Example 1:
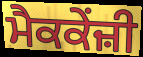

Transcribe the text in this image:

ਮੈਕਕੇਂਜ਼ੀ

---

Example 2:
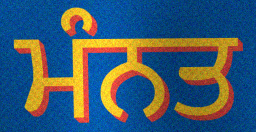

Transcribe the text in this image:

ਮੰਨਤ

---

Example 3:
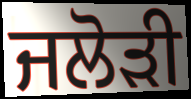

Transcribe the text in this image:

ਜਲੋੜੀ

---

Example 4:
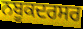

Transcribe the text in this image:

ਨਬੂਕਦਰਸਰ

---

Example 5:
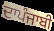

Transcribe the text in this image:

ਦਾਪੰਜਾਬੀ